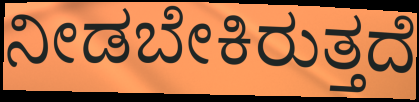
ನೀಡಬೇಕಿರುತ್ತದೆ